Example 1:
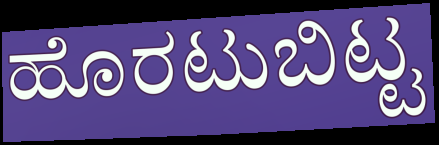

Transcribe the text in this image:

ಹೊರಟುಬಿಟ್ಟ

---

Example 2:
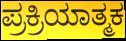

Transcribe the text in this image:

ಪ್ರಕ್ರಿಯಾತ್ಮಕ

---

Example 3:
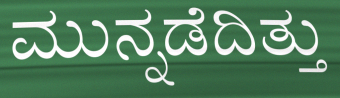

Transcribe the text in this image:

ಮುನ್ನಡೆದಿತ್ತು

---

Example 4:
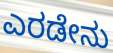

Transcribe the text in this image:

ಎರಡೇನು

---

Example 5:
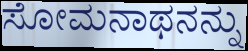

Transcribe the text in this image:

ಸೋಮನಾಥನನ್ನು